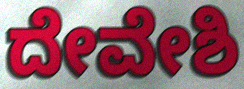
ದೇವೇಶಿ